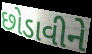
છોડાવીને